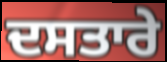
ਦਸਤਾਰੇ